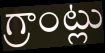
గ్రాంట్లు